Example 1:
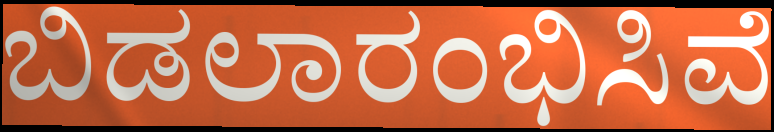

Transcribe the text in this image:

ಬಿಡಲಾರಂಭಿಸಿವೆ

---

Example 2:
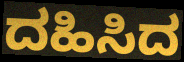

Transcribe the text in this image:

ದಹಿಸಿದ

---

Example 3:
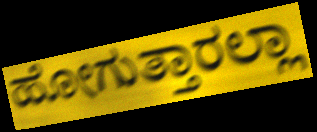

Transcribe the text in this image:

ಹೋಗುತ್ತಾರಲ್ಲಾ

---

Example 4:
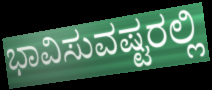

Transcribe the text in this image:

ಭಾವಿಸುವಷ್ಟರಲ್ಲಿ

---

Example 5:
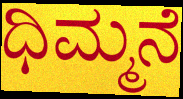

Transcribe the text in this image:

ಧಿಮ್ಮನೆ